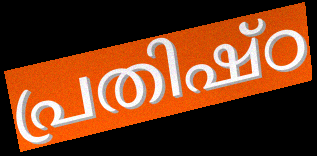
പ്രതിഷ്ഠ